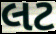
લટ